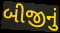
બીજીનું